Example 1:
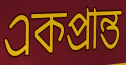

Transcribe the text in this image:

একপ্রান্ত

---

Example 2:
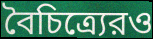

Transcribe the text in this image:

বৈচিত্র্যেরও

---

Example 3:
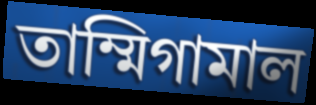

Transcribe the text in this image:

তাম্মিগামাল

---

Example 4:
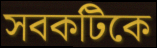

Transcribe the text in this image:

সবকটিকে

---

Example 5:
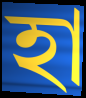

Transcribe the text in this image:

হা